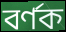
বর্ণক